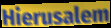
Hierusalem